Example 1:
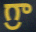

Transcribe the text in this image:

గ్రా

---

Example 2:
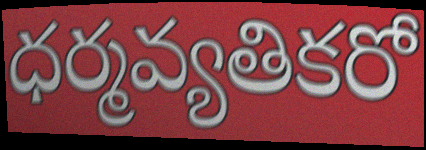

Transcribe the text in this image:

ధర్మవ్యతికరో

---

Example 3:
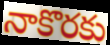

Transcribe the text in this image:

నాకొరకు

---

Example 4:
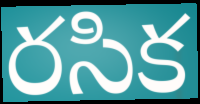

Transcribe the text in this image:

రసిక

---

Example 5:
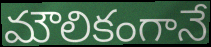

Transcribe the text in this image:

మౌలికంగానే